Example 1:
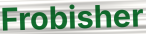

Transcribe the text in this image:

Frobisher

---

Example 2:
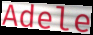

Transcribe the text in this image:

Adele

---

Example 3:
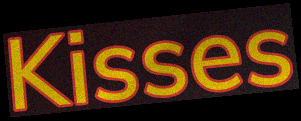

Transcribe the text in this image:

Kisses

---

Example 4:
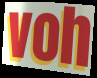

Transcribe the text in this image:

voh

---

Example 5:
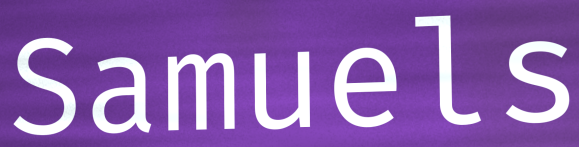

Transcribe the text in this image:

Samuels